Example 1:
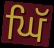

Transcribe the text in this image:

ਘਿੱ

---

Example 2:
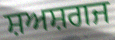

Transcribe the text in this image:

ਸ਼ਅਸ਼ਗਜ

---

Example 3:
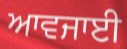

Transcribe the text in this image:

ਆਵਜਾਈ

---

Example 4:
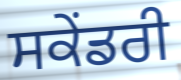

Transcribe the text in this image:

ਸਕੇਂਡਰੀ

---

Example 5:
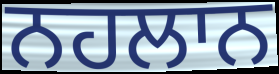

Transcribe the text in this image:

ਨਹਲਾਨ